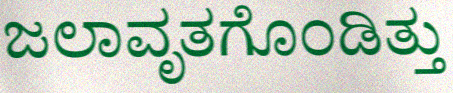
ಜಲಾವೃತಗೊಂಡಿತ್ತು